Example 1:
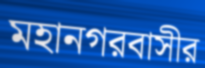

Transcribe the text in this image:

মহানগরবাসীর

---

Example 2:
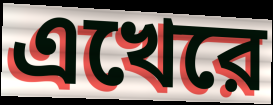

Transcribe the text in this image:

এখেরে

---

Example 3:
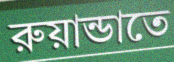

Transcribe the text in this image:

রুয়ান্ডাতে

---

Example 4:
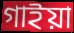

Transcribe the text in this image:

গাইয়া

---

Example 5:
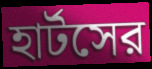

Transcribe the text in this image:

হার্টসের